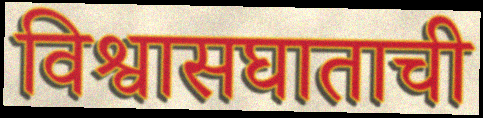
विश्वासघाताची